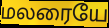
மலரையே